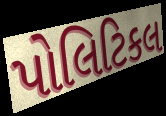
પોલિટિકલ